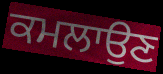
ਕਮਲਾਉਣ